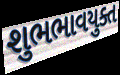
શુભભાવયુક્ત